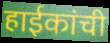
हाईकांची